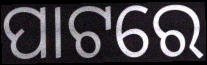
ପାଟରେ